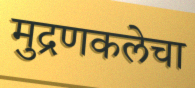
मुद्रणकलेचा